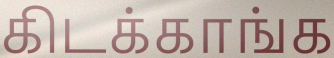
கிடக்காங்க